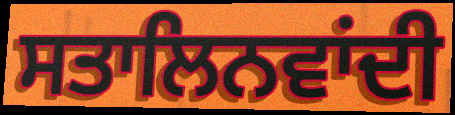
ਸਤਾਲਿਨਵਾਂਦੀ